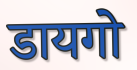
डायगो